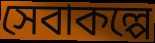
সেবাকল্পে